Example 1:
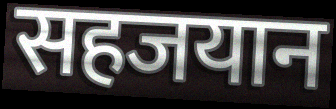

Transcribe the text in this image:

सहजयान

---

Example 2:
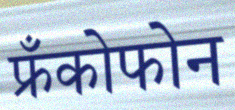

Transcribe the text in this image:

फ्रँकोफोन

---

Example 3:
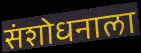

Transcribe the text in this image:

संशोधनाला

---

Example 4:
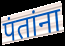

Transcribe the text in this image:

पंतांना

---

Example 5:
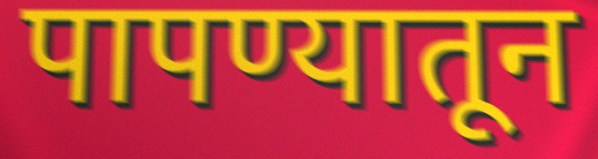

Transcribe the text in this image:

पापण्यातून